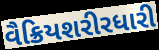
વૈક્રિયશરીરધારી